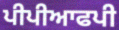
ਪੀਪੀਆਫਪੀ